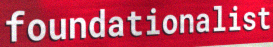
foundationalist